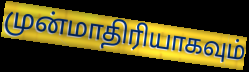
முன்மாதிரியாகவும்